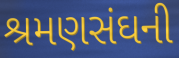
શ્રમણસંઘની